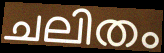
ചലിതം